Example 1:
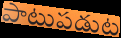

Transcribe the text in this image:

పాటుపడుట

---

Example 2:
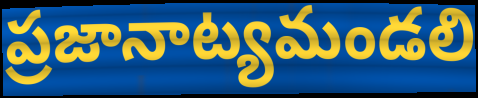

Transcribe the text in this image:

ప్రజానాట్యమండలి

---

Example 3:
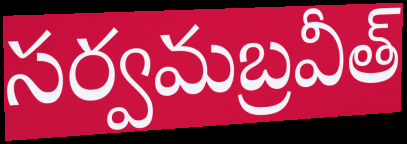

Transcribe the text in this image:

సర్వమబ్రవీత్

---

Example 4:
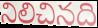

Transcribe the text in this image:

నిలిచినది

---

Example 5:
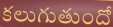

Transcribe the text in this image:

కలుగుతుందో